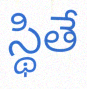
స్థితే